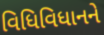
વિધિવિધાનને